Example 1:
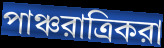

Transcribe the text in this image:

পাঞ্চরাত্রিকরা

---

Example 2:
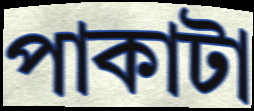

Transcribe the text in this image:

পাকাটা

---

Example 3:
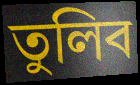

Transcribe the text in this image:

তুলিব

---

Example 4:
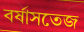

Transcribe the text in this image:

বর্ষাসতেজ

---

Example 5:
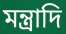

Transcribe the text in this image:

মন্ত্রাদি